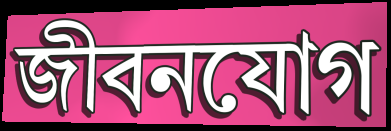
জীবনযোগ